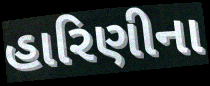
હારિણીના